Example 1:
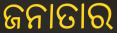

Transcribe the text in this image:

ଜନାତାର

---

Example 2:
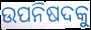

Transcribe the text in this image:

ଉପନିଷଦକୁ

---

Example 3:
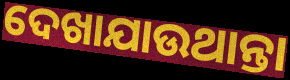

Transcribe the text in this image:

ଦେଖାଯାଉଥାନ୍ତା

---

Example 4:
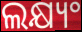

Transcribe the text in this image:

ଲକ୍ଷ୍ୟଂ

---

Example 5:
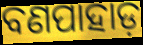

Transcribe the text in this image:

ବଣପାହାଡ଼